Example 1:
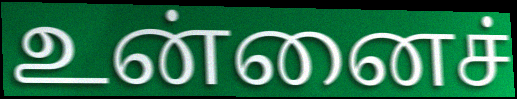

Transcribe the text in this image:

உன்னைச்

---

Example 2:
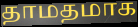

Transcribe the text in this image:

தாமதமாக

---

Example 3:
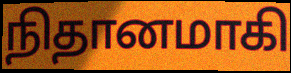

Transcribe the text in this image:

நிதானமாகி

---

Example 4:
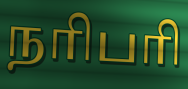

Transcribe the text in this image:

நரிபரி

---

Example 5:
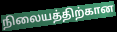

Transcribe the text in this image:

நிலையத்திற்கான